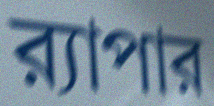
র‍্যাপার